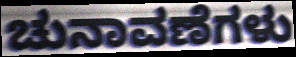
ಚುನಾವಣೆಗಳು